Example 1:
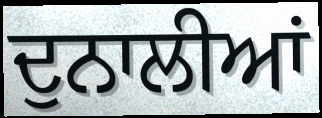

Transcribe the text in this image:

ਦੁਨਾਲੀਆਂ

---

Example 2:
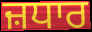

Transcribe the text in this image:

ਜ਼ਧਾਰ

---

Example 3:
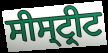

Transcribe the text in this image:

ਸੀਸ੍ਟ੍ਰੀਟ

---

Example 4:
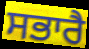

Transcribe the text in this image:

ਸਭਾਰੈ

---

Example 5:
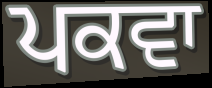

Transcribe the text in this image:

ਪਕਵਾ